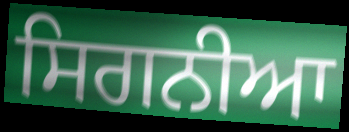
ਸਿਗਨੀਆ